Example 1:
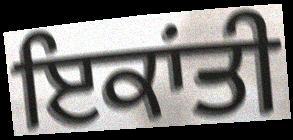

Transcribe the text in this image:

ਇਕਾਂਤੀ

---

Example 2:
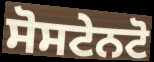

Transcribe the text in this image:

ਸੋਸਟੇਨਟੋ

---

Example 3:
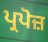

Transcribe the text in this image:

ਪ੍ਰਪੋਜ਼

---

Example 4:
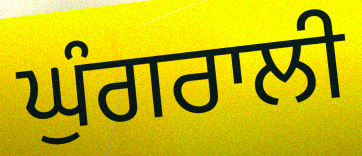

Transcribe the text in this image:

ਘੁੰਗਰਾਲੀ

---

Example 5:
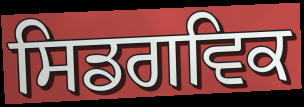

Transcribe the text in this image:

ਸਿਡਗਵਿਕ